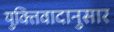
युक्तिवादानुसार